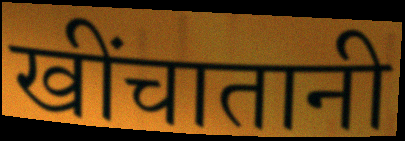
खींचातानी